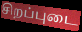
சிறப்புடை